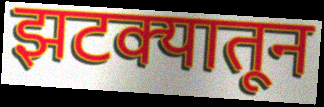
झटक्यातून